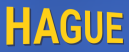
HAGUE